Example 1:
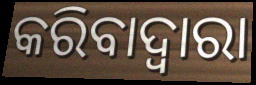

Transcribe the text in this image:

କରିବାଦ୍ବାରା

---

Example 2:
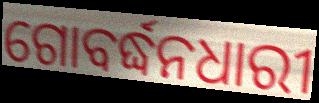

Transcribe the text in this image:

ଗୋବର୍ଦ୍ଧନଧାରୀ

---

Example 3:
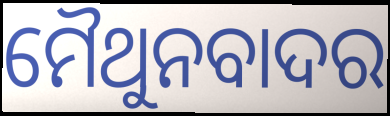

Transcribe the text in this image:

ମୈଥୁନବାଦର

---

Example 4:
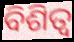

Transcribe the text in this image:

ବିଶିତ୍ଵ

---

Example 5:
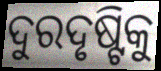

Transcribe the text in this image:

ଦୁରଦୃଷ୍ଟିକୁ